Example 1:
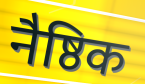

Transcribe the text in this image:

नैष्ठिक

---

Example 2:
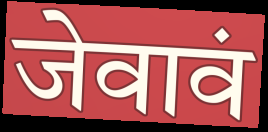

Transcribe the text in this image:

जेवावं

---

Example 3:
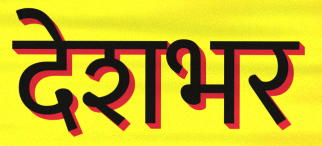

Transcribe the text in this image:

देशभर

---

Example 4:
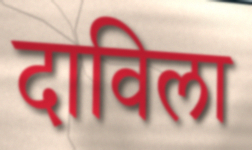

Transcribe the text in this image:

दाविला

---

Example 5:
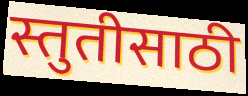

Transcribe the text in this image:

स्तुतीसाठी